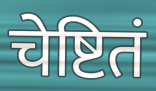
चेष्टितं